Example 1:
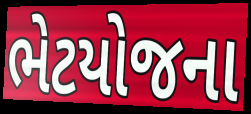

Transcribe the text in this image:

ભેટયોજના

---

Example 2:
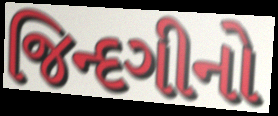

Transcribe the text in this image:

જિન્દગીનો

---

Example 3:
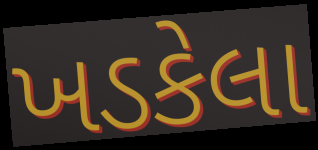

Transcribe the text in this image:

ખડકેલા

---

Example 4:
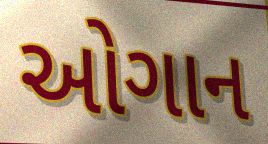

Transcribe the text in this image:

ઓગાન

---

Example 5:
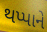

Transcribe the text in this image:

થપ્પાને